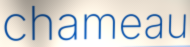
chameau